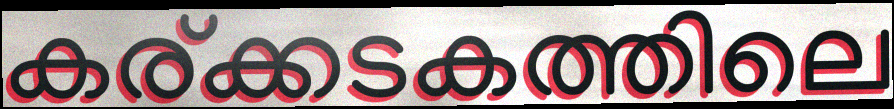
കര്ക്കടകത്തിലെ